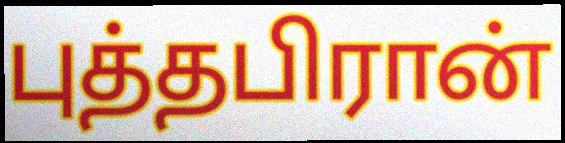
புத்தபிரான்